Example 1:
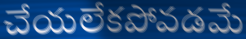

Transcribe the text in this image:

చేయలేకపోవడమే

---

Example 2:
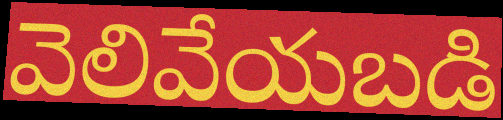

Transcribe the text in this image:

వెలివేయబడి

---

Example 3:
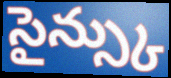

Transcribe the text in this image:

సైన్స్కు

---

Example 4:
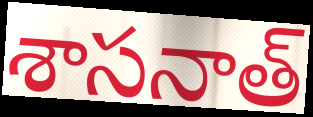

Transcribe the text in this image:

శాసనాత్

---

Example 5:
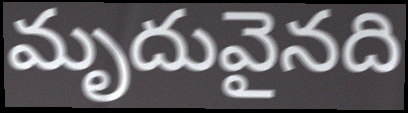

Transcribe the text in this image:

మృదువైనది